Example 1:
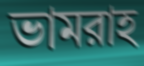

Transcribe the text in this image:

ভামরাহ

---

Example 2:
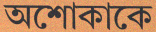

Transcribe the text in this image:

অশোকাকে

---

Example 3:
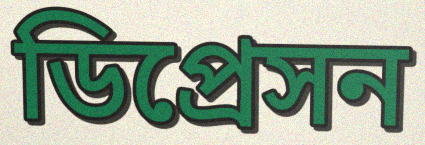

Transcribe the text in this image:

ডিপ্রেসন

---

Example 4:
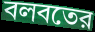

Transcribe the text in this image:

বলবতের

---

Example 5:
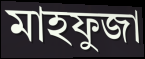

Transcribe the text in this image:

মাহফুজা